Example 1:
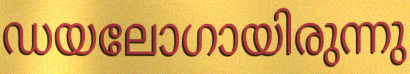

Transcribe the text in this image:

ഡയലോഗായിരുന്നു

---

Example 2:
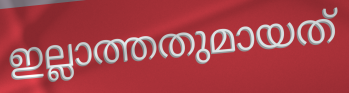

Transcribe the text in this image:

ഇല്ലാത്തതുമായത്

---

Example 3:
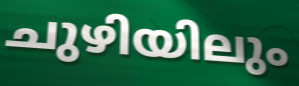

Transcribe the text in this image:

ചുഴിയിലും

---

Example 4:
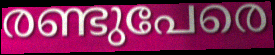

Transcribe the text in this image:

രണ്ടുപേരെ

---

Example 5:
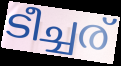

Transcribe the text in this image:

ടീച്ചര്